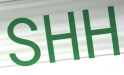
SHH